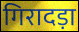
गिरादड़ा